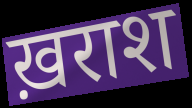
ख़राश